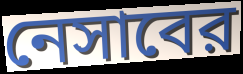
নেসাবের